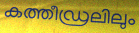
കത്തീഡ്രലിലും